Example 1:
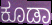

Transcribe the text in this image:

ಕೂಡಾ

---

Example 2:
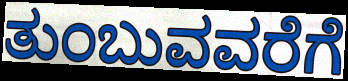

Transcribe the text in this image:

ತುಂಬುವವರೆಗೆ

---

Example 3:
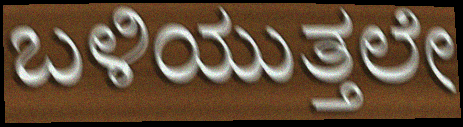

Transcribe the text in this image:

ಬಳಿಯುತ್ತಲೇ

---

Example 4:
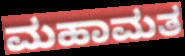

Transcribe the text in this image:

ಮಹಾಮತ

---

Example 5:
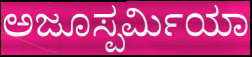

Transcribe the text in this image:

ಅಜೂಸ್ಪರ್ಮಿಯಾ